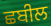
ਛਬੀਲ